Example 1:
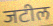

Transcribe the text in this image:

जटील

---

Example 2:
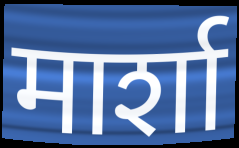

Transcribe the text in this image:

मार्शा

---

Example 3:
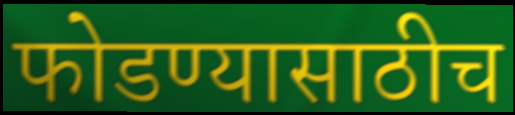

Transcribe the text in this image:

फोडण्यासाठीच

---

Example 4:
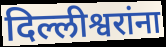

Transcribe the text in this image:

दिल्लीश्वरांना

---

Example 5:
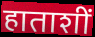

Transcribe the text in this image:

हाताशीं